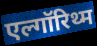
एल्गॉरिथ्म